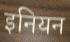
इनियन